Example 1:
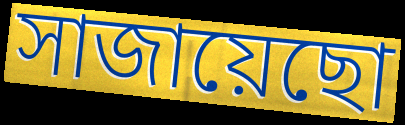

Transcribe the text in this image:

সাজায়েছো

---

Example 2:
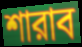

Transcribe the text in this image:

শারাব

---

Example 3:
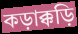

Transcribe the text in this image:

কড়াক্কড়ি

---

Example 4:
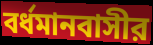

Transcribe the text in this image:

বর্ধমানবাসীর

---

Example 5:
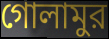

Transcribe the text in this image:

গোলামুর